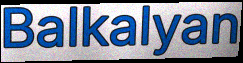
Balkalyan